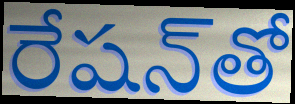
రేషన్‌తో